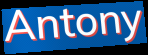
Antony